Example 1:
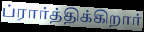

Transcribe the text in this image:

ப்ரார்த்திக்கிறார்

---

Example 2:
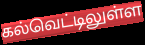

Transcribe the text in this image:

கல்வெட்டிலுள்ள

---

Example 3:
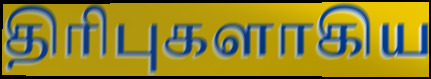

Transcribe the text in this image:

திரிபுகளாகிய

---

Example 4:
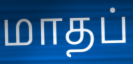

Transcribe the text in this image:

மாதப்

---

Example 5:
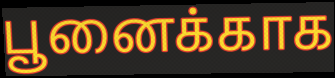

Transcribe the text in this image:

பூனைக்காக